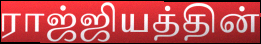
ராஜ்ஜியத்தின்